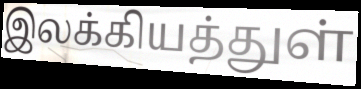
இலக்கியத்துள்